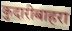
कुदारीबाहरा